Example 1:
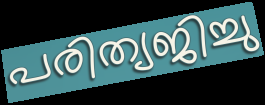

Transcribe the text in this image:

പരിത്യജിച്ചു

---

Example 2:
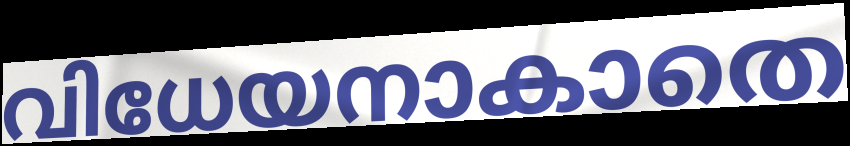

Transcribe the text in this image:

വിധേയനാകാതെ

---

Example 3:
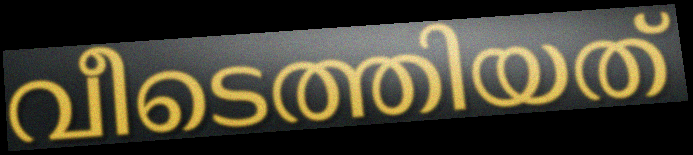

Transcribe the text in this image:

വീടെത്തിയത്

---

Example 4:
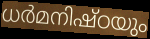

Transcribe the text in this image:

ധർമനിഷ്ഠയും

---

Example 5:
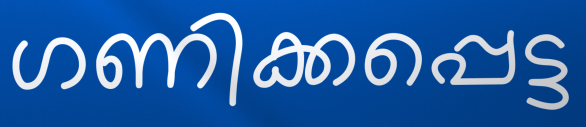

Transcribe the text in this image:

ഗണിക്കപ്പെട്ട